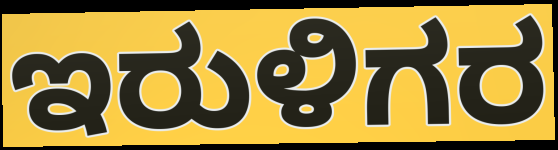
ಇರುಳಿಗರ